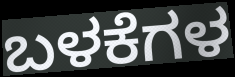
ಬಳಕೆಗಳ